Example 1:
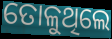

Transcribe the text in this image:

ତୋଳୁଥିଲେ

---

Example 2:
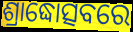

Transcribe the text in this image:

ଶ୍ରାଦ୍ଧୋତ୍ସବରେ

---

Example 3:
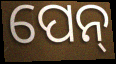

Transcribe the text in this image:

ପେନ୍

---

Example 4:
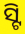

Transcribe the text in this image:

ସ୍ଟି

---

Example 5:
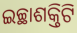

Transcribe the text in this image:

ଇଚ୍ଛାଶକ୍ତିଟି